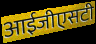
आईजीएसटी